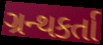
ગ્રન્થકર્તા